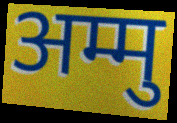
अम्मु